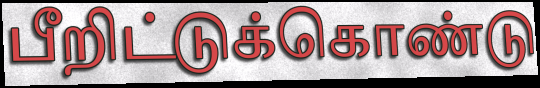
பீறிட்டுக்கொண்டு